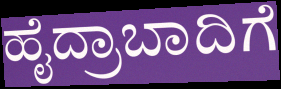
ಹೈದ್ರಾಬಾದಿಗೆ